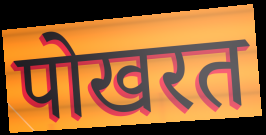
पोखरत